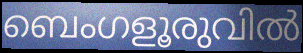
ബെംഗളൂരുവിൽ